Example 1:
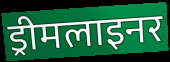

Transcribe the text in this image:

ड्रीमलाइनर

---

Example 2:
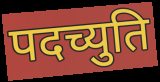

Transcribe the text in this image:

पदच्युति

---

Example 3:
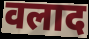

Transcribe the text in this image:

वलाद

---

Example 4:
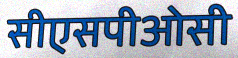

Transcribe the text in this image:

सीएसपीओसी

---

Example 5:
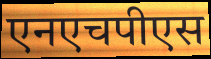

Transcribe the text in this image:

एनएचपीएस